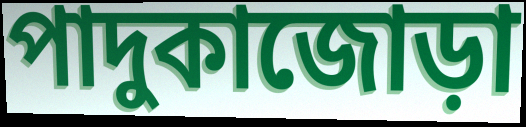
পাদুকাজোড়া